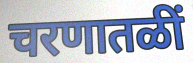
चरणातळीं